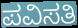
ಪವಿಸತಿ